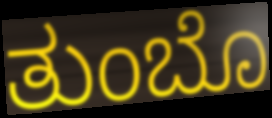
ತುಂಬೊ